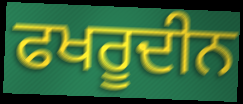
ਫਖਰੂਦੀਨ